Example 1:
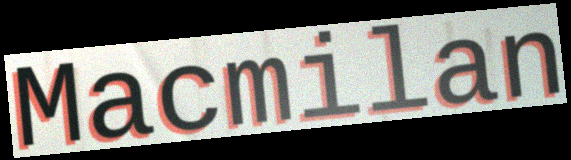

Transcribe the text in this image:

Macmilan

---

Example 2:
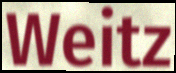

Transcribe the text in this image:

Weitz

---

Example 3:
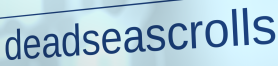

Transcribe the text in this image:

deadseascrolls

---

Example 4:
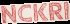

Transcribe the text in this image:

NCKRI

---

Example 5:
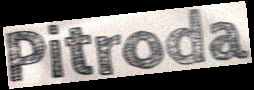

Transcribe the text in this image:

Pitroda